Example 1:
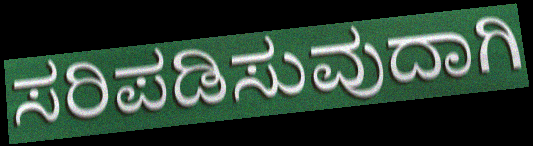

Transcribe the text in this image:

ಸರಿಪಡಿಸುವುದಾಗಿ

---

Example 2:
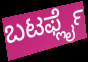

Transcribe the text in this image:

ಬಟರ್ಫ್ಲೈ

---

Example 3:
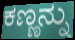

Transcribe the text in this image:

ಕಣ್ಣನ್ನು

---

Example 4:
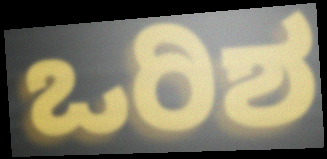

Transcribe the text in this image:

ಒರಿಶ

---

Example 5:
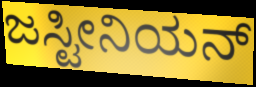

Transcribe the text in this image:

ಜಸ್ಟೀನಿಯನ್